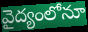
వైద్యంలోనూ